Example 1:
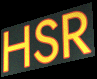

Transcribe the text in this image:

HSR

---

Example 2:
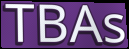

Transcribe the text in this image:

TBAs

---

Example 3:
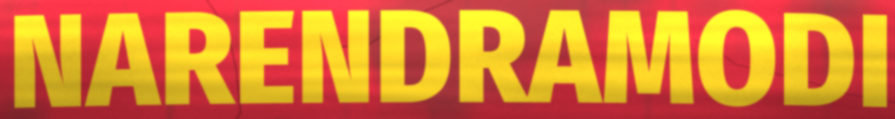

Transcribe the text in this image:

NARENDRAMODI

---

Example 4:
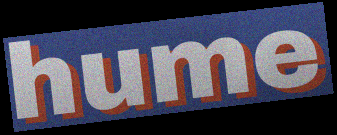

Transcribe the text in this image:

hume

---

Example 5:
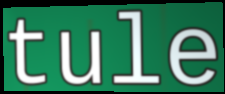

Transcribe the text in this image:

tule